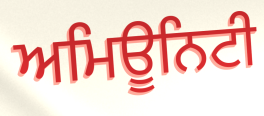
ਅਮਿਊਨਿਟੀ